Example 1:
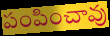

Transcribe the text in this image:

పంపించావు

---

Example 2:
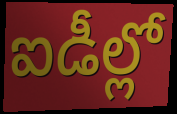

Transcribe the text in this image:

ఐడీల్లో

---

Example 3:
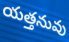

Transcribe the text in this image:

యత్తనువు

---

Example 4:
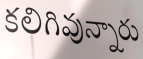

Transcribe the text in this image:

కలిగివున్నారు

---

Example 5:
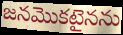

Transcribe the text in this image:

జనమొకటైనను